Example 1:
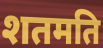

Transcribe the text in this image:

शतमति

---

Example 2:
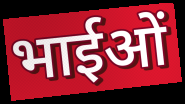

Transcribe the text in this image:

भाईओं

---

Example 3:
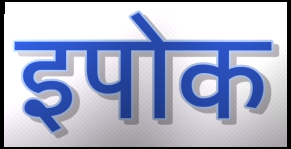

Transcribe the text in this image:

इपोक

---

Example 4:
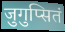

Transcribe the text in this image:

जुगुप्सितं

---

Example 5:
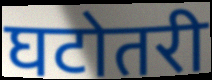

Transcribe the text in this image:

घटोतरी